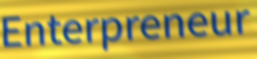
Enterpreneur